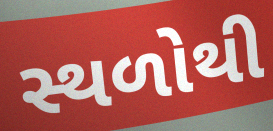
સ્થળોથી